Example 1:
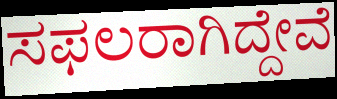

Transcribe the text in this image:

ಸಫಲರಾಗಿದ್ದೇವೆ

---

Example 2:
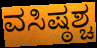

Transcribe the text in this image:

ವಸಿಷ್ಠಶ್ಚ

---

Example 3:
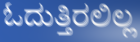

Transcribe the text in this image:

ಓದುತ್ತಿರಲಿಲ್ಲ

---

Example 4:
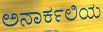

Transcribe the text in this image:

ಅನಾರ್ಕಲಿಯ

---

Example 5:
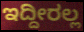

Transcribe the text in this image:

ಇದ್ದೀರಲ್ಲ